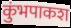
कुंभपाकश